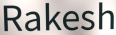
Rakesh